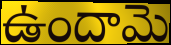
ఉందామె